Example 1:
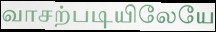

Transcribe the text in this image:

வாசற்படியிலேயே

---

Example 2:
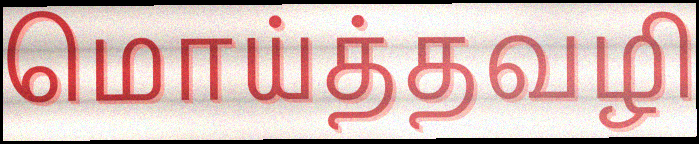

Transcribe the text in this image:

மொய்த்தவழி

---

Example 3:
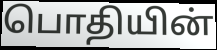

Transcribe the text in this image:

பொதியின்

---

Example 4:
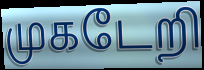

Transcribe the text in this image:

முகடேறி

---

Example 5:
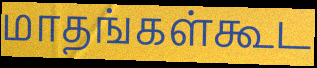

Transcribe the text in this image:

மாதங்கள்கூட